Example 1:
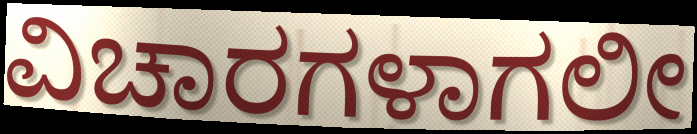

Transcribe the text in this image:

ವಿಚಾರಗಳಾಗಲೀ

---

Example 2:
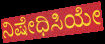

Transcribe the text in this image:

ನಿಷೇಧಿಸಿಯೇ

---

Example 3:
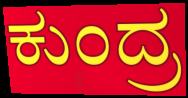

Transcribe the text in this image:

ಕುಂದ್ರ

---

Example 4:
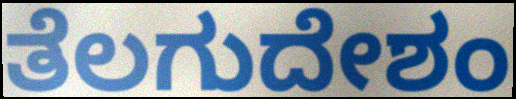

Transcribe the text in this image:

ತೆಲಗುದೇಶಂ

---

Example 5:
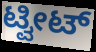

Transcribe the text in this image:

ಟ್ವೀಟ್